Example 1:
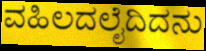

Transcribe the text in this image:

ವಹಿಲದಲೈದಿದನು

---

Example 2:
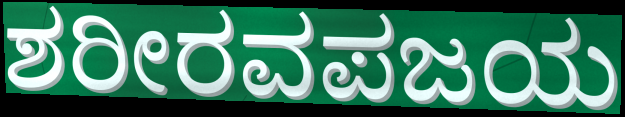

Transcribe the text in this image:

ಶರೀರವಪಜಯ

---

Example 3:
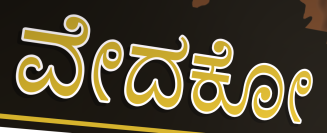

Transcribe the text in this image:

ವೇದಕೋ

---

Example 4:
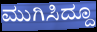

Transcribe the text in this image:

ಮುಗಿಸಿದ್ದೂ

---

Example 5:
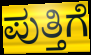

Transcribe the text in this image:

ಪುತ್ತಿಗೆ